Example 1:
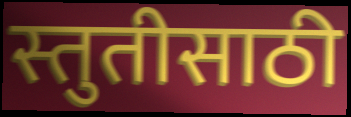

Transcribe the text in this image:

स्तुतीसाठी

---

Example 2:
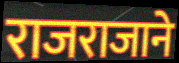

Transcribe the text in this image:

राजराजाने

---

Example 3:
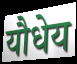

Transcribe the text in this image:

यौधेय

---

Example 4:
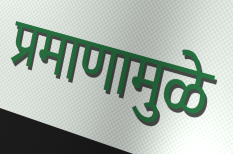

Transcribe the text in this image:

प्रमाणामुळे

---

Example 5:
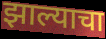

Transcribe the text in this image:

झाल्याचा